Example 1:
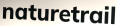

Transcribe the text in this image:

naturetrail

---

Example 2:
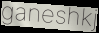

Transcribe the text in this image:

ganeshkj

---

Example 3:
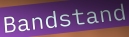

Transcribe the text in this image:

Bandstand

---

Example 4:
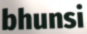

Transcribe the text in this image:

bhunsi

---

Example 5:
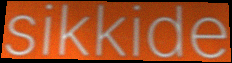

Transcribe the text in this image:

sikkide